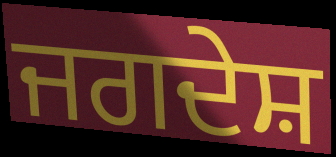
ਜਗਦੇਸ਼